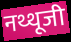
नथ्थूजी